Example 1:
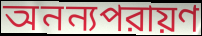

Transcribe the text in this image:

অনন্যপরায়ণ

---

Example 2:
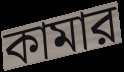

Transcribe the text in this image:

কামার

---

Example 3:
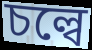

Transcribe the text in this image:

চল্বে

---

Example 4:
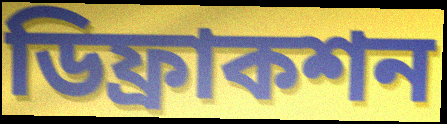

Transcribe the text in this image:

ডিফ্রাকশন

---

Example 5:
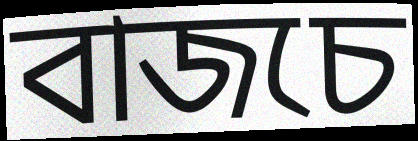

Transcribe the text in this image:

বাজচে